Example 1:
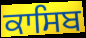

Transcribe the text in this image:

ਕਾਸਿਬ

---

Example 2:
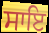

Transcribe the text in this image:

ਸਾਇ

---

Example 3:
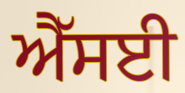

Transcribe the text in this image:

ਐੱਸਈ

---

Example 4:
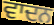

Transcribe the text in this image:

ਵਾਦਨ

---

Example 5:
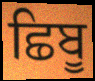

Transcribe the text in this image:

ਛਿਬੂ